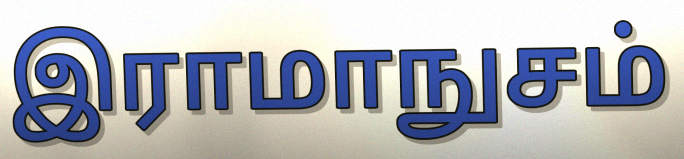
இராமாநுசம்